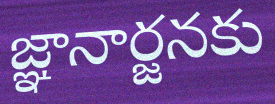
జ్ఞానార్జనకు